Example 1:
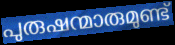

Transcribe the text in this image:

പുരുഷന്മാരുമുണ്ട്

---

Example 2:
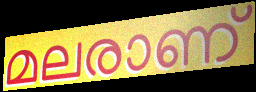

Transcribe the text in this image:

മലരാണ്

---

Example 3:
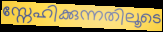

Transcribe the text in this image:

സ്നേഹിക്കുന്നതിലൂടെ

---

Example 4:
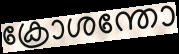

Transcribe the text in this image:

ക്രോശന്തോ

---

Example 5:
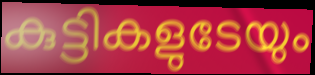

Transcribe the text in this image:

കുട്ടികളുടേയും